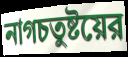
নাগচতুষ্টয়ের